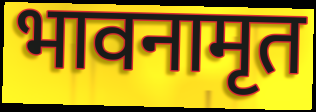
भावनामृत